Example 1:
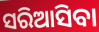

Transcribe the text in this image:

ସରିଆସିବା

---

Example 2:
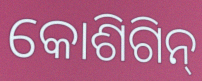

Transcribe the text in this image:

କୋଶିଗିନ୍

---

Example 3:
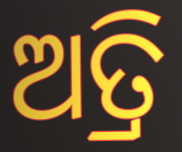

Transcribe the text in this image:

ଅତ୍ରି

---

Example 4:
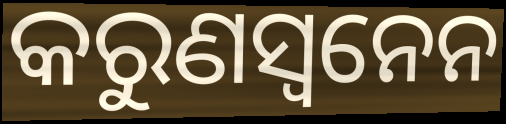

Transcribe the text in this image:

କରୁଣସ୍ଵନେନ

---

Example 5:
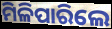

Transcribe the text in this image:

ମିଳିପାରିଲେ